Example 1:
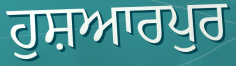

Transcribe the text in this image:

ਹੁਸ਼ਆਰਪੁਰ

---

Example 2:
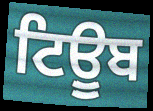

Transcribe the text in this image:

ਟਿਊੂਬ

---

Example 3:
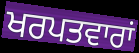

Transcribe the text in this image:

ਖਰਪਤਵਾਰਾਂ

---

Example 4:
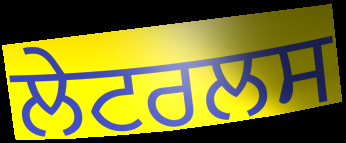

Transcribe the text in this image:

ਲੇਟਰਲਸ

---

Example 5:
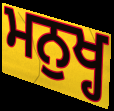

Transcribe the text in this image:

ਮਨੁਖ੍ਹ